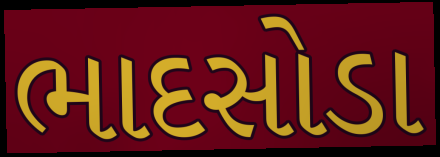
ભાદસોડા